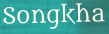
Songkha